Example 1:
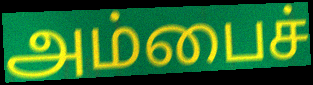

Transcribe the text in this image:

அம்பைச்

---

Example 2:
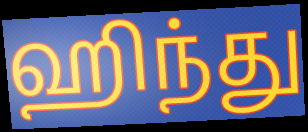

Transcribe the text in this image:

ஹிந்து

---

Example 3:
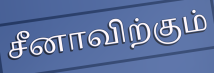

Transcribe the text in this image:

சீனாவிற்கும்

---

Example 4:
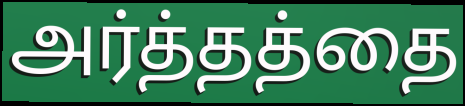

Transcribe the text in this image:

அர்த்தத்தை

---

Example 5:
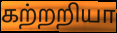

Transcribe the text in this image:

கற்றறியா